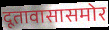
दूतावासासमोर